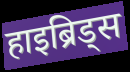
हाइब्रिड्स